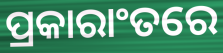
ପ୍ରକାରାଂତରେ